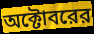
অক্টোবরের